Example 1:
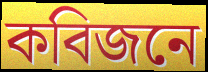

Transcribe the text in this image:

কবিজনে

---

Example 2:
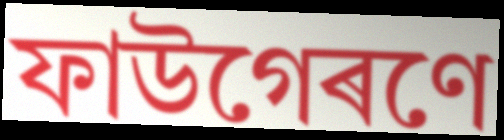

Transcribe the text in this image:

ফাউগেৰণে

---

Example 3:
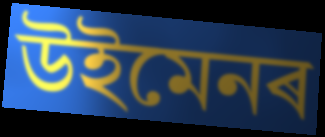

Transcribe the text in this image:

উইমেনৰ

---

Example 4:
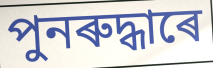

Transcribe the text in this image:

পুনৰুদ্ধাৰে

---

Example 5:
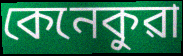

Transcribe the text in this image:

কেনেকুৱা